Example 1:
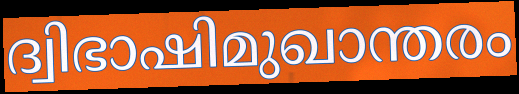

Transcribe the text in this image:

ദ്വിഭാഷിമുഖാന്തരം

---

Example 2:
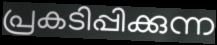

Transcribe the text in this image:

പ്രകടിപ്പിക്കുന്ന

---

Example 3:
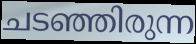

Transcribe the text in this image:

ചടഞ്ഞിരുന്ന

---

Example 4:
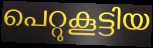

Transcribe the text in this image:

പെറ്റുകൂട്ടിയ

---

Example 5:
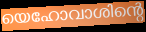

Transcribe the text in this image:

യെഹോവാശിന്റെ